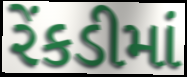
રેંકડીમાં